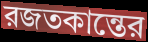
রজতকান্তের